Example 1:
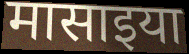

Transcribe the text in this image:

मासाइया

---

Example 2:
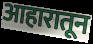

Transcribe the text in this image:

आहारातून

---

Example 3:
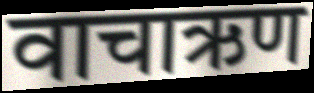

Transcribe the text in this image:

वाचाऋण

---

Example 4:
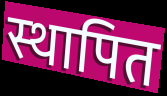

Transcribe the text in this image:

स्थापित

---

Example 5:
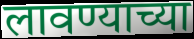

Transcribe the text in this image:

लावण्याच्या